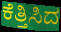
ಕೆತ್ತಿಸಿದ